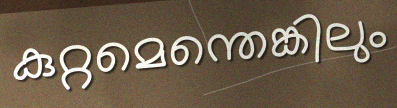
കുറ്റമെന്തെങ്കിലും